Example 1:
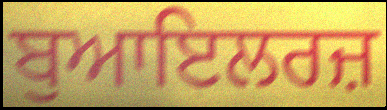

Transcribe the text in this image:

ਬੁਆਇਲਰਜ਼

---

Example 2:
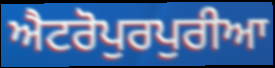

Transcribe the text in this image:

ਐਟਰੋਪੁਰਪੁਰੀਆ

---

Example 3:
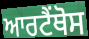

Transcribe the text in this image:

ਆਰਟੈਂਥੋਸ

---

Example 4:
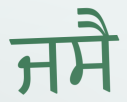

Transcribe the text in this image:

ਜਸੈ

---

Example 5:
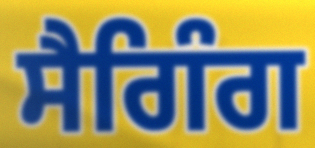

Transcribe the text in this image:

ਸੈਗਿੰਗ